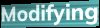
Modifying